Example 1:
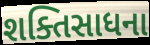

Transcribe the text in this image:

શક્તિસાધના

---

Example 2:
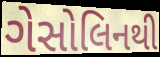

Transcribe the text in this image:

ગેસોલિનથી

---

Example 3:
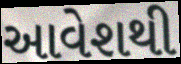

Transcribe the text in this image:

આવેશથી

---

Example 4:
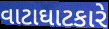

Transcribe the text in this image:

વાટાઘાટકારે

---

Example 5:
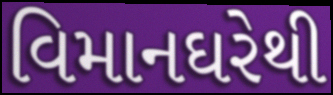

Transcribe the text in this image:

વિમાનઘરેથી